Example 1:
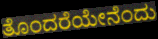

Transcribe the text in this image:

ತೊಂದರೆಯೇನೆಂದು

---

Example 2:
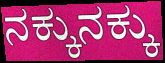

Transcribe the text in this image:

ನಕ್ಕುನಕ್ಕು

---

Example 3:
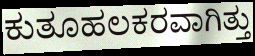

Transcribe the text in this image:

ಕುತೂಹಲಕರವಾಗಿತ್ತು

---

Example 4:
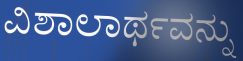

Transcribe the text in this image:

ವಿಶಾಲಾರ್ಥವನ್ನು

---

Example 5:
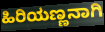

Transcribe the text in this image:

ಹಿರಿಯಣ್ಣನಾಗಿ